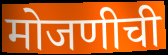
मोजणीची